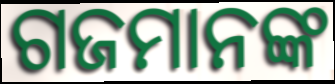
ଗଜମାନଙ୍କ